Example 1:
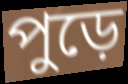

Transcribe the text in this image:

পুড়ে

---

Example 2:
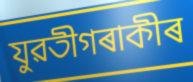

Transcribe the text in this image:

যুৱতীগৰাকীৰ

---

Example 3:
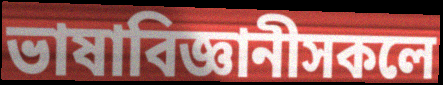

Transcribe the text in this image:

ভাষাবিজ্ঞানীসকলে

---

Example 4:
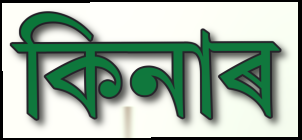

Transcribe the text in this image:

কিনাৰ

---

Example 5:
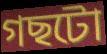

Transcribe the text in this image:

গছটো